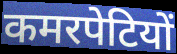
कमरपेटियों